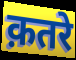
क़तरे